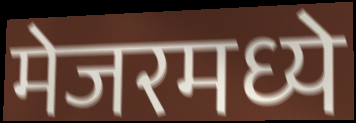
मेजरमध्ये